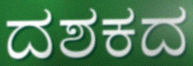
ದಶಕದ